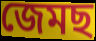
জেমছ